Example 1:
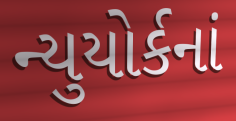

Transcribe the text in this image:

ન્યુયોર્કનાં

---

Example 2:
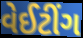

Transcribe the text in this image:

વેઈટીંગ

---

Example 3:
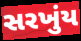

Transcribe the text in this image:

સરખુંય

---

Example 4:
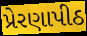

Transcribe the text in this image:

પ્રેરણાપીઠ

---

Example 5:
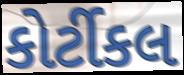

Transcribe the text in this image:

કોર્ટીકલ